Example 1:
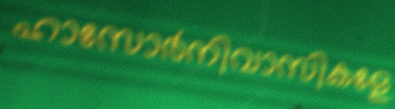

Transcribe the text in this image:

ഹാസോർനിവാസികളേ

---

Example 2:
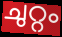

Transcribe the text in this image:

ചുറ്റം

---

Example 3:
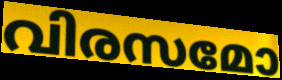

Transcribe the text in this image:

വിരസമോ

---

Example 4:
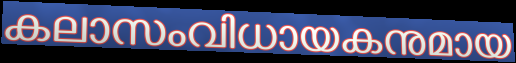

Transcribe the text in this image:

കലാസംവിധായകനുമായ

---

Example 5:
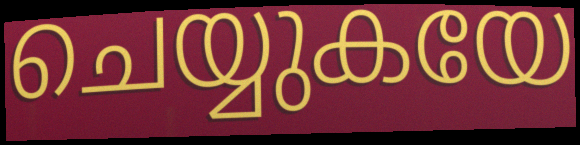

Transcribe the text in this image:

ചെയ്യുകയേ